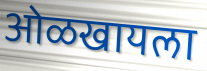
ओळखायला